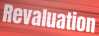
Revaluation